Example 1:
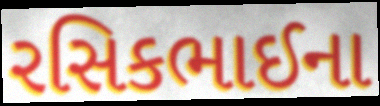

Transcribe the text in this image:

રસિકભાઈના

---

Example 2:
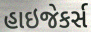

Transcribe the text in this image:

હાઇજેકર્સ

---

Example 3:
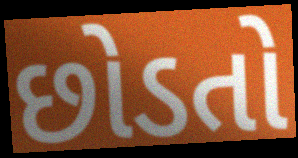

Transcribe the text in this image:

છોડતો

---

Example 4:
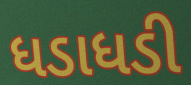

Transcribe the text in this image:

ધડાધડી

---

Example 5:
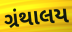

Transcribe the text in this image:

ગ્રંથાલય